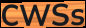
CWSs